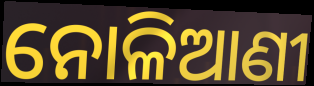
ନୋଳିଆଣୀ